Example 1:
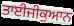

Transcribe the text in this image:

ਤਾਈਜੀਕੁਆਨ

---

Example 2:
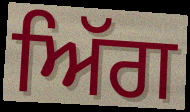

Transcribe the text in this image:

ਅਿੱਗ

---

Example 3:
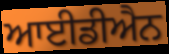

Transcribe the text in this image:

ਆਈਡੀਐਨ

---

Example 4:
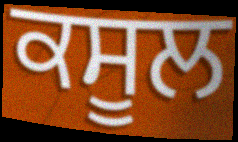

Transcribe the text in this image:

ਕਸੂਲ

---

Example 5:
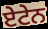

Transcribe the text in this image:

ਏਟੇਨ